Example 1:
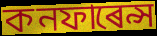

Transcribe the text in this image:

কনফাৰেন্স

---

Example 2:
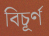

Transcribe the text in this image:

বিচূৰ্ণ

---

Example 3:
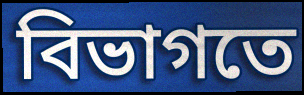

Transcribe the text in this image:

বিভাগতে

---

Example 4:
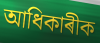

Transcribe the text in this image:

আধিকাৰীক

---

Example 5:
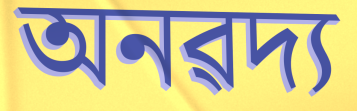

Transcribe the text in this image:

অনৱদ্য